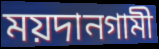
ময়দানগামী